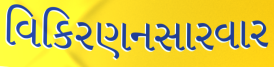
વિકિરણનસારવાર